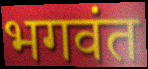
भगवंत